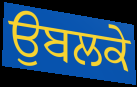
ਉਬਲਕੇ